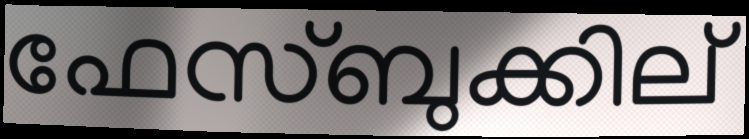
ഫേസ്ബുക്കില്